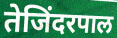
तेजिंदरपाल